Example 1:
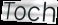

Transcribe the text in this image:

Toch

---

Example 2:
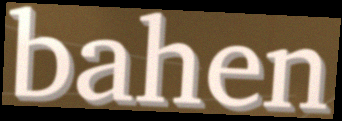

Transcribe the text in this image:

bahen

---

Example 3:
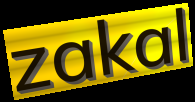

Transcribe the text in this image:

zakal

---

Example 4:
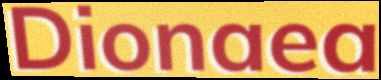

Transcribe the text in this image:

Dionaea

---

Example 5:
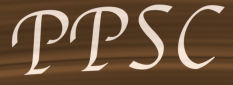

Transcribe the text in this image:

PPSC